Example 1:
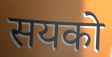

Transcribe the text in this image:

सयको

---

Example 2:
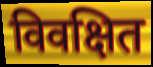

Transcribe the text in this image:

विवक्षित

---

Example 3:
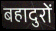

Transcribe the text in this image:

बहादुरों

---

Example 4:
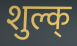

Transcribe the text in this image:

शुल्क्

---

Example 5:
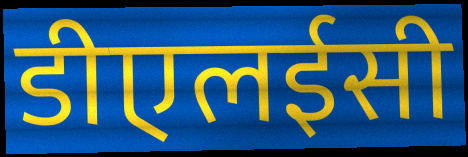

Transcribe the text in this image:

डीएलईसी